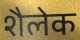
शैलेक